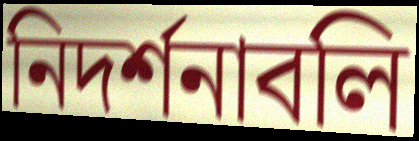
নিদর্শনাবলি